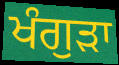
ਖੰਗੁੜਾ